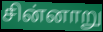
சின்னாறு